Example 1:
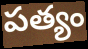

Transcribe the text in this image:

పత్యం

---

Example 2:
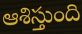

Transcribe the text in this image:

ఆశిస్తుంది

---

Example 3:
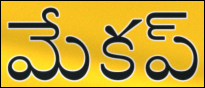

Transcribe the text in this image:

మేకప్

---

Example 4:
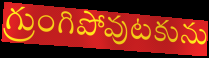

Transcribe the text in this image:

గ్రుంగిపోవుటకును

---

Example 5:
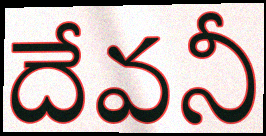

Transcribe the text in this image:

దేవనీ